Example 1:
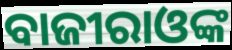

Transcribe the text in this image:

ବାଜୀରାଓଙ୍କ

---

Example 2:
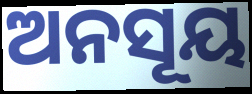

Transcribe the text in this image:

ଅନସୂୟ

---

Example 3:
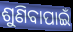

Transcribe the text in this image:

ଶୁଣିବାପାଇଁ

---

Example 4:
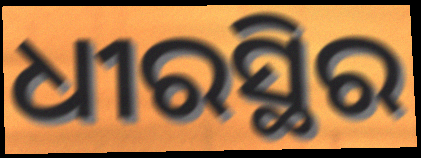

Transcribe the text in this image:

ଧୀରସ୍ଥିର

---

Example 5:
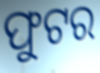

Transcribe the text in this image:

ଫୁଟର